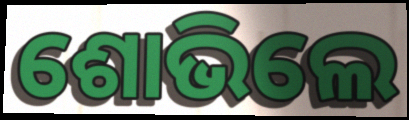
ଶୋଭିଲେ